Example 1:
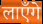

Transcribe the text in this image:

लाएँगे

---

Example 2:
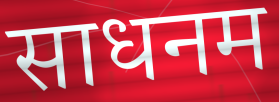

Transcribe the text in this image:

साधनम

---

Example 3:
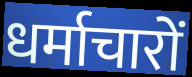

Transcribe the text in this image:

धर्माचारों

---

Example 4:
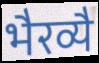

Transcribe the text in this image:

भैरव्यै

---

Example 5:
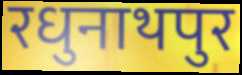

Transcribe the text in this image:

रधुनाथपुर